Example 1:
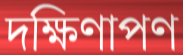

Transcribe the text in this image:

দক্ষিণাপণ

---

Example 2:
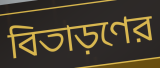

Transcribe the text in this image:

বিতাড়ণের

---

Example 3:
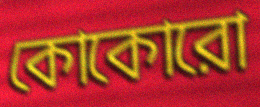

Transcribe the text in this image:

কোকোরো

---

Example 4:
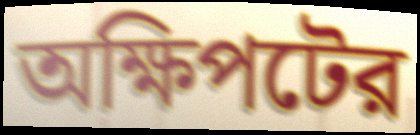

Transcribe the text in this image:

অক্ষিপটের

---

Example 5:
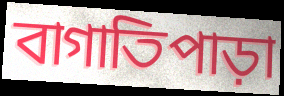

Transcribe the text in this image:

বাগাতিপাড়া